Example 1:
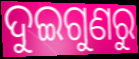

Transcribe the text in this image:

ଦୁଇଗୁଣରୁ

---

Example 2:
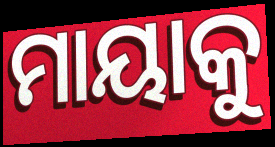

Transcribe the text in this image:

ମାୟାକୁ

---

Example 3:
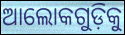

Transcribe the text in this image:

ଆଲୋକଗୁଡ଼ିକୁ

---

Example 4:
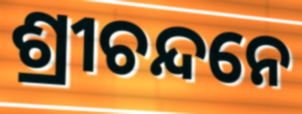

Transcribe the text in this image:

ଶ୍ରୀଚନ୍ଦନେ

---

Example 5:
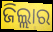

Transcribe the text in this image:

ଜିଲ୍ଲାର